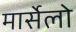
मार्सेलो